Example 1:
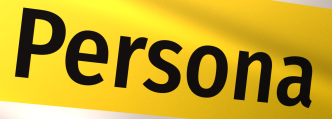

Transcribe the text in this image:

Persona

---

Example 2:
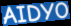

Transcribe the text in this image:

AIDYO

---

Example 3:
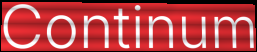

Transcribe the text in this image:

Continum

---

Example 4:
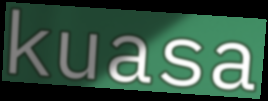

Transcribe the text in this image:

kuasa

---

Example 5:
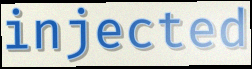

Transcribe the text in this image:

injected